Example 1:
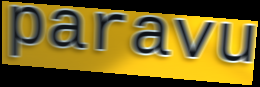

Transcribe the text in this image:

paravu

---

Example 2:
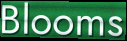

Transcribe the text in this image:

Blooms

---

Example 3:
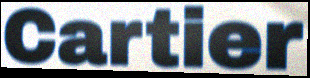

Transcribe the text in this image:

Cartier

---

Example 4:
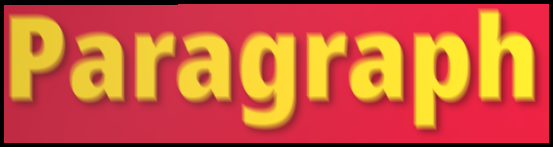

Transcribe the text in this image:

Paragraph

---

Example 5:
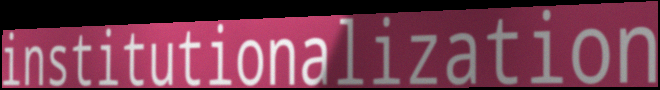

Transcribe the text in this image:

institutionalization